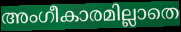
അംഗീകാരമില്ലാതെ